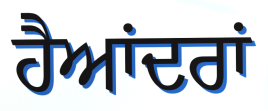
ਹੈਆਂਦਰਾਂ